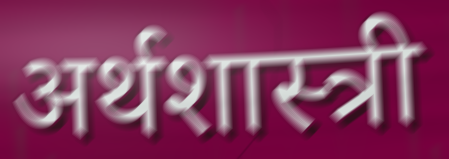
अर्थशास्त्री